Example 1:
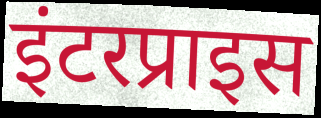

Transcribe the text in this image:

इंटरप्राइस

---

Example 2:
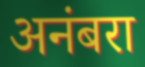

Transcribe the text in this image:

अनंबरा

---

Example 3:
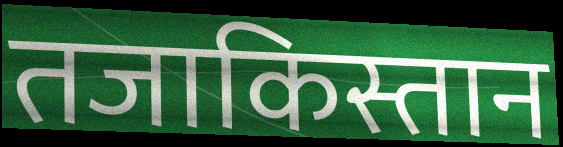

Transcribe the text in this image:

तजाकिस्‍तान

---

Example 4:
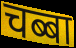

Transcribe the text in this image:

चब्बा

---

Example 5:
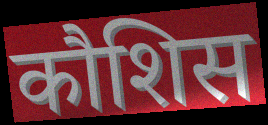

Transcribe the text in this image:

कौशिस